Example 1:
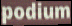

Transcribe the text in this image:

podium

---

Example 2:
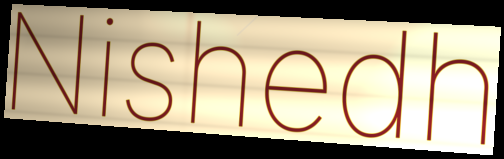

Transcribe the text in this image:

Nishedh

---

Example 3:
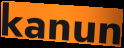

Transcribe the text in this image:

kanun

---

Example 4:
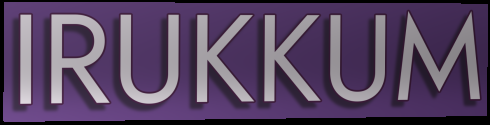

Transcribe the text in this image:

IRUKKUM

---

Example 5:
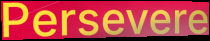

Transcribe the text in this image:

Persevere